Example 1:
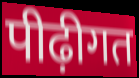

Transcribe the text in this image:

पीढ़ीगत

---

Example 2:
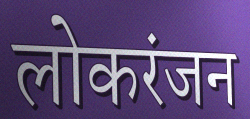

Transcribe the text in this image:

लोकरंजन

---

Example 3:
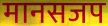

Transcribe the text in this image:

मानसजप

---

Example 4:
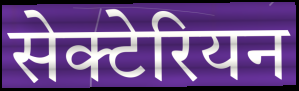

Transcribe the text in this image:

सेक्टेरियन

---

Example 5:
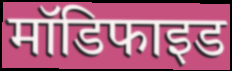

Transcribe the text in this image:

मॉडिफाइड